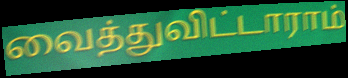
வைத்துவிட்டாராம்